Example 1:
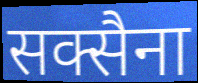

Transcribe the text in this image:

सक्सैना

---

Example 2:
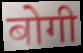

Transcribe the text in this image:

बोगी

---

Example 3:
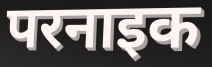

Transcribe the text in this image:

परनाइक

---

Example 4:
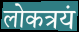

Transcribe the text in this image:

लोकत्रयं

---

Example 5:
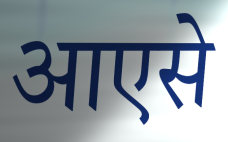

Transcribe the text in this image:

आएसे